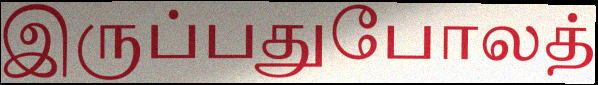
இருப்பதுபோலத்